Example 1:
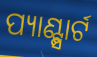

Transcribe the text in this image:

ପ୍ୟାଣ୍ଟ୍ସାର୍ଟ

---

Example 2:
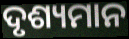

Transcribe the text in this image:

ଦୃଶ୍ୟମାନ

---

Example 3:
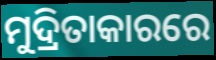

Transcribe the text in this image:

ମୁଦ୍ରିତାକାରରେ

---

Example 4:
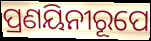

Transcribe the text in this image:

ପ୍ରଣୟିନୀରୂପେ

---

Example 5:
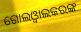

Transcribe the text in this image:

ଗୋଲଓ୍ଵାଲକରଙ୍କ